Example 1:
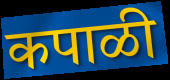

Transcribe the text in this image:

कपाळी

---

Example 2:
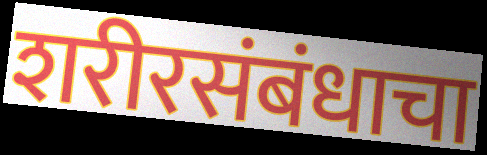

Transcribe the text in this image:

शरीरसंबंधाचा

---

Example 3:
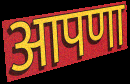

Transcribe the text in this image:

आपणा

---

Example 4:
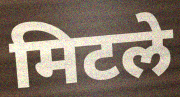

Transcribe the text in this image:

मिटले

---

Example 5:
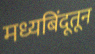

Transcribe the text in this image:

मध्यबिंदूतून